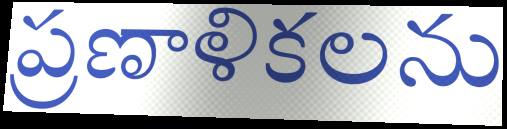
ప్రణాళికలను